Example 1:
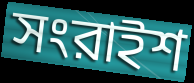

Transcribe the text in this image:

সংরাইশ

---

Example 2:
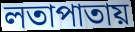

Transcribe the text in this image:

লতাপাতায়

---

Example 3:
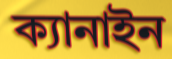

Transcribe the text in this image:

ক্যানাইন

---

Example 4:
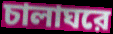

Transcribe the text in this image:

চালাঘরে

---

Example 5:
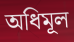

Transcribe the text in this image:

অধিমূল